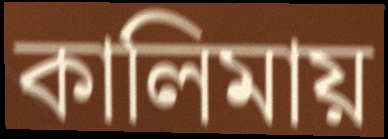
কালিমায়